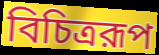
বিচিত্ররূপ